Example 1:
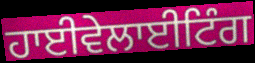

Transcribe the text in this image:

ਹਾਈਵੇਲਾਈਟਿੰਗ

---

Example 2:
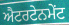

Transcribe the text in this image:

ਐਟਰਟੇਨਮੇਂਟ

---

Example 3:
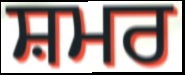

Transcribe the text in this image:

ਸ਼ਮਰ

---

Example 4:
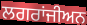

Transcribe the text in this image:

ਲਗਰਾਂਜੀਅਨ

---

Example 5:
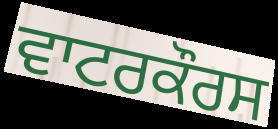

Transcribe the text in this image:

ਵਾਟਰਕੌਰਸ